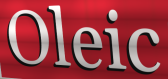
Oleic